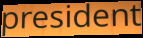
president